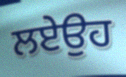
ਲਏਉਹ